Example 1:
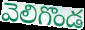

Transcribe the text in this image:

వెలిగొండ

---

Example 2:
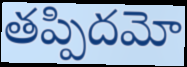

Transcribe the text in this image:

తప్పిదమో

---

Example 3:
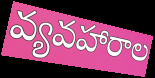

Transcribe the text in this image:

వ్యవహారాల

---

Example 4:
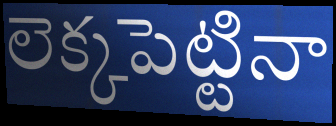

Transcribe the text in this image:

లెక్కపెట్టినా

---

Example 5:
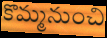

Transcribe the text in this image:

కొమ్మనుంచి